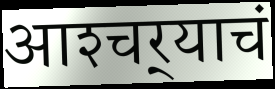
आश्चर्याचं